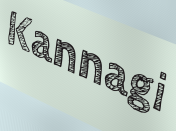
Kannagi